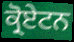
ਕ੍ਰੋਏਟਨ